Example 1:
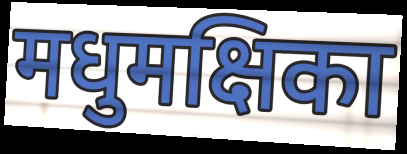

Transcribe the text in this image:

मधुमक्षिका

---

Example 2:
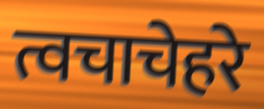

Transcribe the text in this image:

त्वचाचेहरे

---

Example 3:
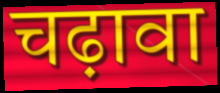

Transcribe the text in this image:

चढ़ावा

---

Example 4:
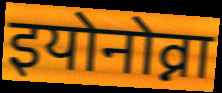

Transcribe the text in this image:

इयोनोव्ना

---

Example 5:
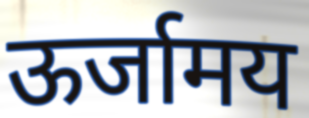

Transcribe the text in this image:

ऊर्जामय